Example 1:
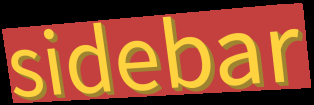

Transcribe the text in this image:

sidebar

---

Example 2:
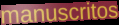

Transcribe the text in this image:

manuscritos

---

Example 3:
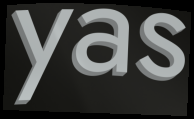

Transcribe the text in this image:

yas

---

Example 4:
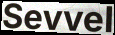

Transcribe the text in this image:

Sevvel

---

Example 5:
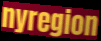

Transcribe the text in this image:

nyregion